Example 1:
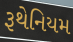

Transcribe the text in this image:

રૂથેનિયમ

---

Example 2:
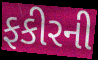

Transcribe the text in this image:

ફકીરની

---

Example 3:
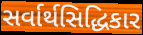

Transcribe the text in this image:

સર્વાર્થસિદ્ધિકાર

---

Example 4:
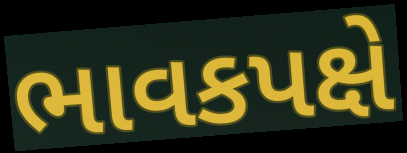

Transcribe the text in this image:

ભાવકપક્ષે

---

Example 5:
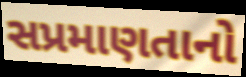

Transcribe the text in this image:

સપ્રમાણતાનો